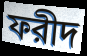
ফরীদ